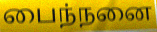
பைந்நனை